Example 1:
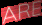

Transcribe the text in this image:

ARE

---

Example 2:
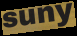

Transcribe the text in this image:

suny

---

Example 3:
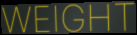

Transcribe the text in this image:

WEIGHT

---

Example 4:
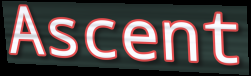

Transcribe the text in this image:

Ascent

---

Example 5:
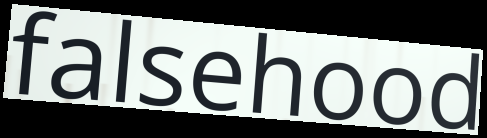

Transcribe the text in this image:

falsehood